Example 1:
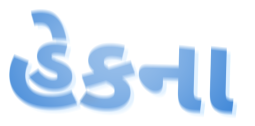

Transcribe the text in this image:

હેકના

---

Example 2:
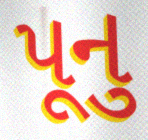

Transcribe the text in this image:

પૂનુ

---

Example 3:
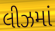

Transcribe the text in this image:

લીઝમાં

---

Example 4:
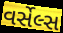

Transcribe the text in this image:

વર્સેલ્સ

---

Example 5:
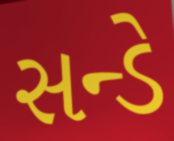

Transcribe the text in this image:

સન્ડે